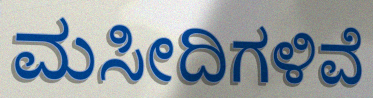
ಮಸೀದಿಗಳಿವೆ